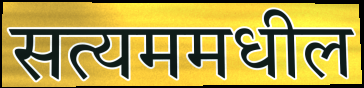
सत्यममधील